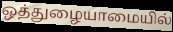
ஒத்துழையாமையில்